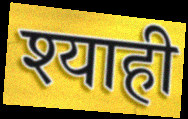
श्याही